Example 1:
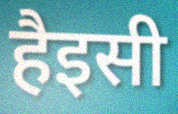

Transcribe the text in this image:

हैइसी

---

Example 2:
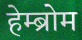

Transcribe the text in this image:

हेम्ब्रोम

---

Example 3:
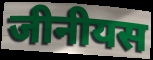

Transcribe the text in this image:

जीनीयस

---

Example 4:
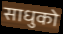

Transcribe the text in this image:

साधुको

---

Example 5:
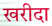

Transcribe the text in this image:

खरीदा